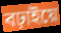
বঢ়াইয়ে